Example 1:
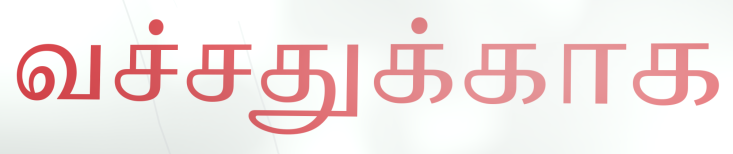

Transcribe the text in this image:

வச்சதுக்காக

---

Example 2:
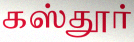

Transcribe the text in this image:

கஸ்தூர்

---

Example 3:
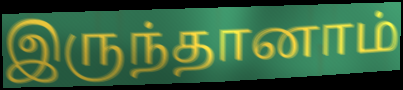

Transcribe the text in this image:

இருந்தானாம்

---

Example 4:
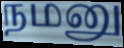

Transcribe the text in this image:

நமனு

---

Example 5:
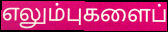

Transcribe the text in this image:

எலும்புகளைப்